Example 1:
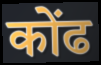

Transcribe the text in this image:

कोंढ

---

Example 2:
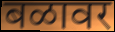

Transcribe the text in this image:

बळावर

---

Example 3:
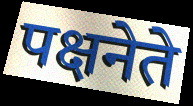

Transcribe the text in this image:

पक्षनेते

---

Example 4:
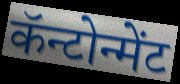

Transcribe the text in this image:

कॅन्टोन्मेंट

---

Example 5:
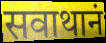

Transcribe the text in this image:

सवाथानं